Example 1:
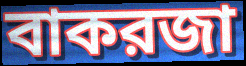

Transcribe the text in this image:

বাকরজা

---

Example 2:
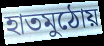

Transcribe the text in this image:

হাতমুঠোয়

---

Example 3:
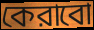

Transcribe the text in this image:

কেরাবো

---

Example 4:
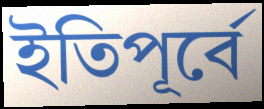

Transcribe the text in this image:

ইতিপূর্বে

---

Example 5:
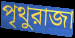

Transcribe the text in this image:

পৃথুরাজা